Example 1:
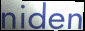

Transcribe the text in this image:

niden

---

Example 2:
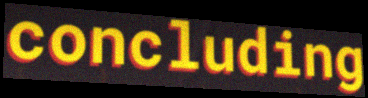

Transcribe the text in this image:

concluding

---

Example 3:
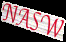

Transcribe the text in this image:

NASW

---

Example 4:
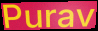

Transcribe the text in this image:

Purav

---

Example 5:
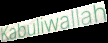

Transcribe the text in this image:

Kabuliwallah